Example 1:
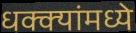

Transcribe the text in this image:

धक्क्यांमध्ये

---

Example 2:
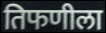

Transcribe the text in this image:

तिफणीला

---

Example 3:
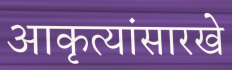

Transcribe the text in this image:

आकृत्यांसारखे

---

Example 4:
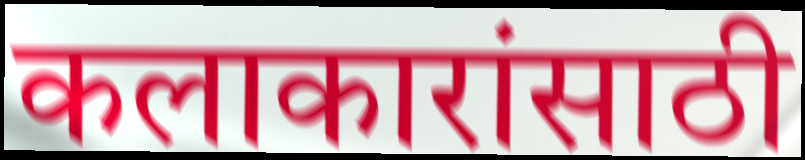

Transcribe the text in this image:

कलाकारांसाठी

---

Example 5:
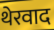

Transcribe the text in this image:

थेरवाद